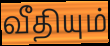
வீதியும்